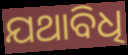
ଯଥାବିଧି